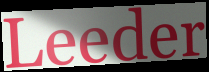
Leeder